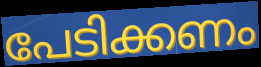
പേടിക്കണം